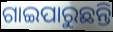
ଗାଇପାରୁଛନ୍ତି